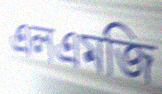
এলএমজি